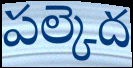
పల్కెద